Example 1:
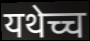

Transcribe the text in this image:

यथेच्च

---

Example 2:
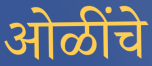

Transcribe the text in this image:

ओळींचे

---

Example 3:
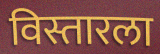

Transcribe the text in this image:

विस्तारला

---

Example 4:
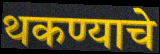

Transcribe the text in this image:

थकण्याचे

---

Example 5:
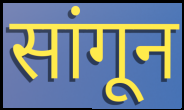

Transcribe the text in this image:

सांगून